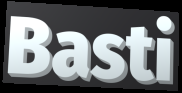
Basti